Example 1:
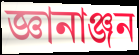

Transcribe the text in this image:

জ্ঞানাঞ্জন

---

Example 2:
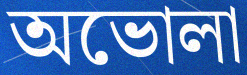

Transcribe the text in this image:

অভোলা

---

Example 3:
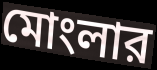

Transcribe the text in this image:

মোংলার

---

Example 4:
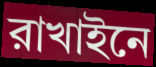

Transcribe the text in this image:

রাখাইনে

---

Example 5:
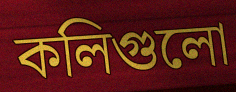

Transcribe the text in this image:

কলিগুলো